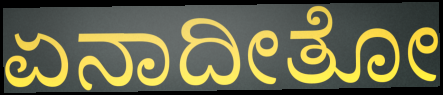
ಏನಾದೀತೋ